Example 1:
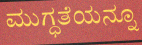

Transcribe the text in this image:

ಮುಗ್ಧತೆಯನ್ನೂ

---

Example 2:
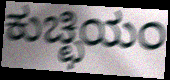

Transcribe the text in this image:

ಕುಚ್ಛಿಯಂ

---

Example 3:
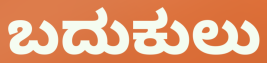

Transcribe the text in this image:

ಬದುಕುಲು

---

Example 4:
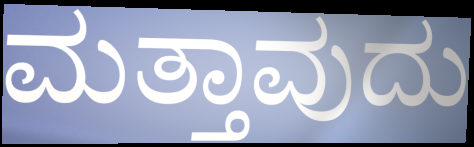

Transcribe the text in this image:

ಮತ್ತಾವುದು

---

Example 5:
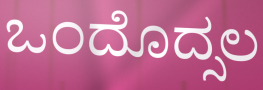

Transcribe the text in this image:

ಒಂದೊದ್ಸಲ